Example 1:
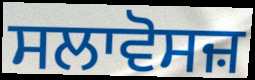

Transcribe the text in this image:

ਸਲਾਵੋਸਜ਼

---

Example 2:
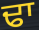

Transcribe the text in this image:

ਢਾ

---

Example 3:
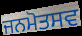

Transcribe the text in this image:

ਜਨਮੋਤਸਵ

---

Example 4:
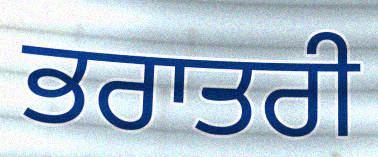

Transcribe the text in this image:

ਭਰਾਤਰੀ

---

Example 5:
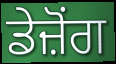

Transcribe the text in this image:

ਡੇਜ਼ੋਂਗ